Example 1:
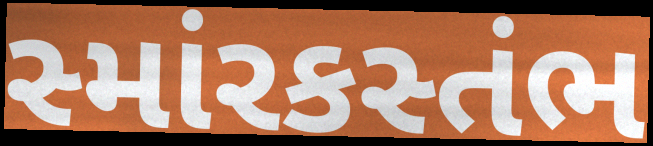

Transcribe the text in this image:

સ્માંરકસ્તંભ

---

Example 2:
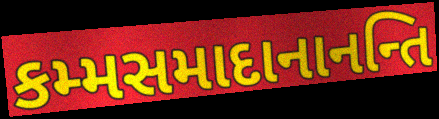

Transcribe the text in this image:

કમ્મસમાદાનાનન્તિ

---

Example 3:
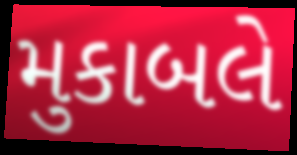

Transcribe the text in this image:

મુકાબલે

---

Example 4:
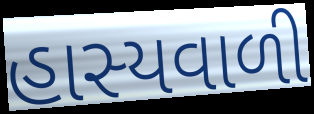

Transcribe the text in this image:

હાસ્યવાળી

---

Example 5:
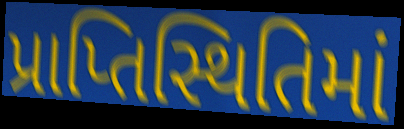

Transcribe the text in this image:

પ્રાપ્તિસ્થિતિમાં